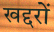
खद्दरों